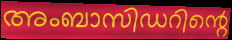
അംബാസിഡറിന്റെ